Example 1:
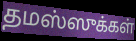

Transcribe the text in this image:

தமஸ்ஸுக்கள்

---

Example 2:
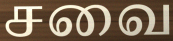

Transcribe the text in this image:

சவை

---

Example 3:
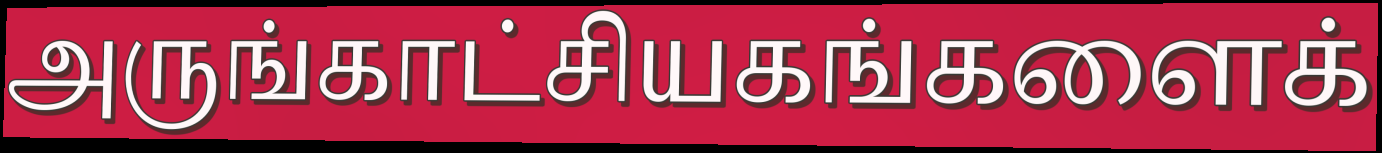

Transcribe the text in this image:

அருங்காட்சியகங்களைக்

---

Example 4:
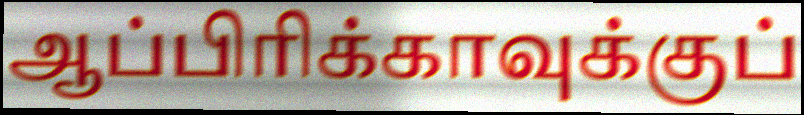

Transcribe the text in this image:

ஆப்பிரிக்காவுக்குப்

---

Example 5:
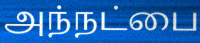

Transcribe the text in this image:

அந்நட்பை